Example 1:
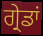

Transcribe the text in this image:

ਗ੍ਰੇਡਾਂ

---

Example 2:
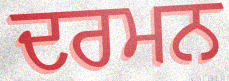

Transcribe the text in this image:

ਦਰਮਨ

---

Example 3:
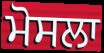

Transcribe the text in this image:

ਮੋਸਲਾ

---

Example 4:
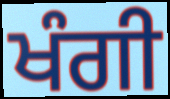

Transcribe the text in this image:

ਖੰਗੀ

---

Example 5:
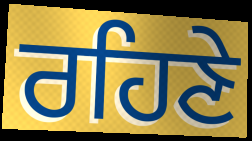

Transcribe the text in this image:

ਰਹਿਣੇ